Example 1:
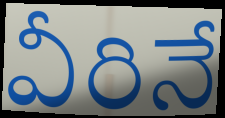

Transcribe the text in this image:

వీరినే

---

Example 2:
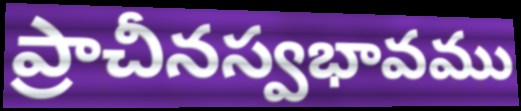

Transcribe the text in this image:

ప్రాచీనస్వభావము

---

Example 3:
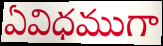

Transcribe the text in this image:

ఏవిధముగా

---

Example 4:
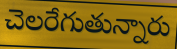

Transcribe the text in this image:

చెలరేగుతున్నారు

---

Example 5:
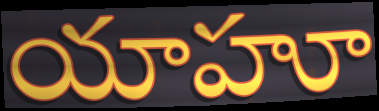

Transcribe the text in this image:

యాహూ